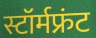
स्टॉर्मफ्रंट